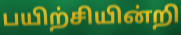
பயிற்சியின்றி